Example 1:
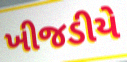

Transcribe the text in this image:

ખીજડીયે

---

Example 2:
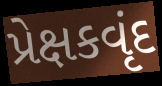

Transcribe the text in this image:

પ્રેક્ષકવૃંદ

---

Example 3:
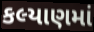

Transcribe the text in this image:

કલ્યાણમાં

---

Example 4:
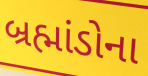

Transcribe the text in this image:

બ્રહ્માંડોના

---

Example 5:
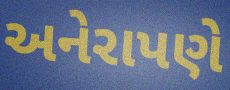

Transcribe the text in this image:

અનેરાપણે